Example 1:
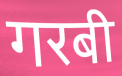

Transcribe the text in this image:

गरबी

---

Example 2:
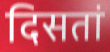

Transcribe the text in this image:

दिसतां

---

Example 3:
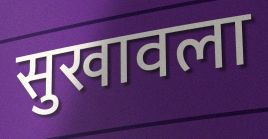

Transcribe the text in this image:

सुखावला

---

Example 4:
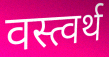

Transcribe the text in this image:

वस्त्वर्थ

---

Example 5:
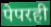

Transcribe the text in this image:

पेपरही